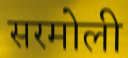
सरमोली